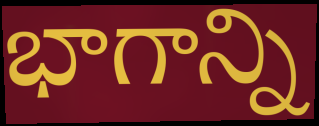
భాగాన్ని